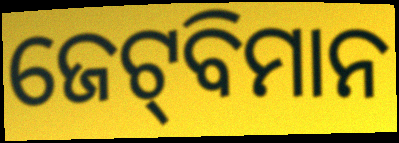
ଜେଟ୍‍ବିମାନ